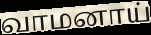
வாமனாய்